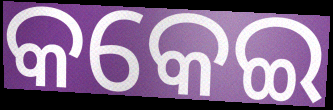
କକେଇ